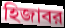
হিজাবর